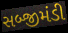
સબ્જીમંડી